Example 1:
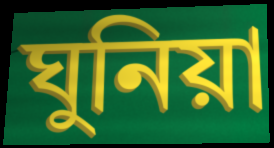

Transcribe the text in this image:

ঘুনিয়া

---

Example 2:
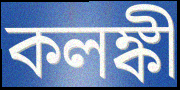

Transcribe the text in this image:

কলঙ্কী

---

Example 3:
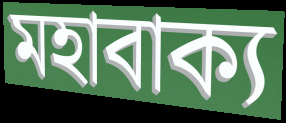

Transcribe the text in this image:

মহাবাক্য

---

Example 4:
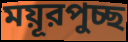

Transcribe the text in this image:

ময়ূরপুচ্ছ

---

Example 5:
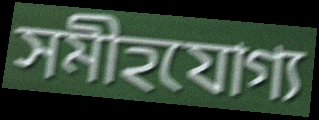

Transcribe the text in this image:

সমীহযোগ্য